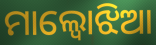
ମାଲ୍ବୋଝିଆ